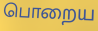
பொறைய